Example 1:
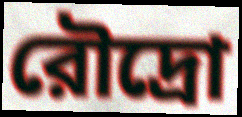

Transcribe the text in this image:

রৌদ্রো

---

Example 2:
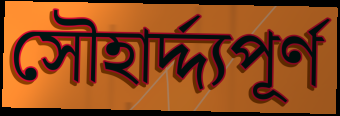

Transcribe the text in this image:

সৌহার্দ্দ্যপূর্ণ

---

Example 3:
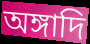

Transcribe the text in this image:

অঙ্গাদি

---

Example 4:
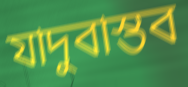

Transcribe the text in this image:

যাদুবাস্তব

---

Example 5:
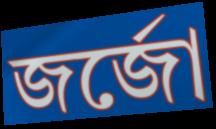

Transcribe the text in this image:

জর্জো